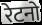
रेटनो